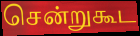
சென்றுகூட